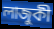
লাজুকী